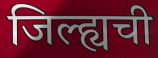
जिल्ह्यची